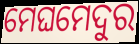
ମେଘମେଦୁର